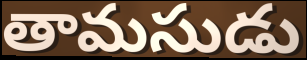
తామసుడు